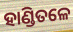
ହାଣ୍ଡିତଳେ